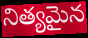
నిత్యమైన